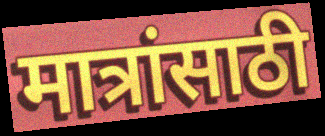
मात्रांसाठी